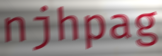
njhpag